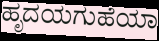
ಹೃದಯಗುಹೆಯಾ